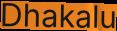
Dhakalu